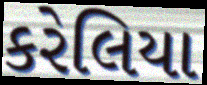
કરેલિયા